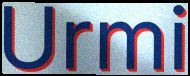
Urmi